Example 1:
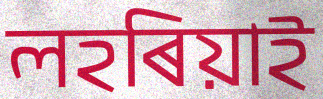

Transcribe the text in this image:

লহৰিয়াই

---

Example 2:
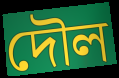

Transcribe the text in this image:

দৌল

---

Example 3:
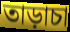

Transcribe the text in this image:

তাড়াচা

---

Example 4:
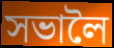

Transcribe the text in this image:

সভালৈ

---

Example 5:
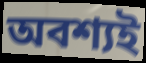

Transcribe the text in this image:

অবশ্যই